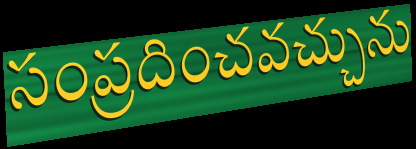
సంప్రదించవచ్చును